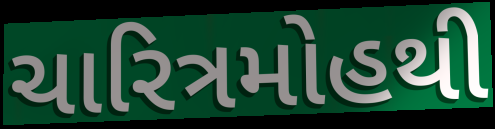
ચારિત્રમોહથી